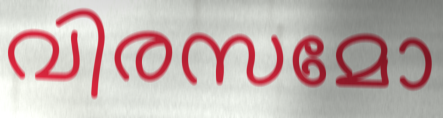
വിരസമോ